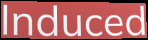
Induced